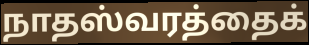
நாதஸ்வரத்தைக்